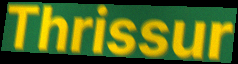
Thrissur